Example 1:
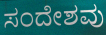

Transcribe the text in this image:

ಸಂದೇಶವು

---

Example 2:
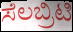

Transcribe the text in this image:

ಸೆಲಬ್ರಿಟಿ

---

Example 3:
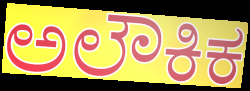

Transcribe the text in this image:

ಅಲೌಕಿಕ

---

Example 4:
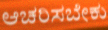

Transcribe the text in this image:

ಆಚರಿಸಬೇಕು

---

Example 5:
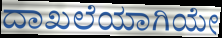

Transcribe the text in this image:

ದಾಖಲೆಯಾಗಿಯೇ